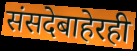
संसदेबाहेरही